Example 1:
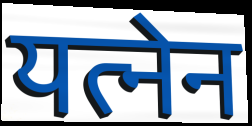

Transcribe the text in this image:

यत्‍नेन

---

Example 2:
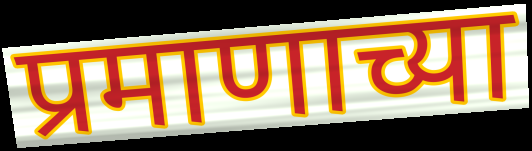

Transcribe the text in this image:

प्रमाणाच्या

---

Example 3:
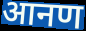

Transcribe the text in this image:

आनण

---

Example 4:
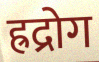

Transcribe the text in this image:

ह्रद्रोग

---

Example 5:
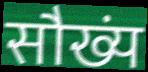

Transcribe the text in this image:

सौख्यं